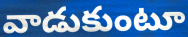
వాడుకుంటూ